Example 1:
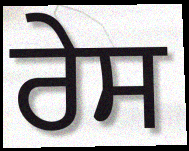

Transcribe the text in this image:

ਰੇਸ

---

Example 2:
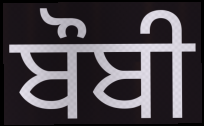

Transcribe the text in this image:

ਬੌਬੀ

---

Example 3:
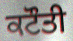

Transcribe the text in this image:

ਕਟੌਤੀ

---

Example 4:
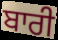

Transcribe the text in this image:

ਬਾਰੀ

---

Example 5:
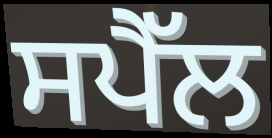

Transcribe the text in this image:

ਸਪੈੱਲ